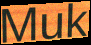
Muk